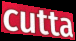
cutta